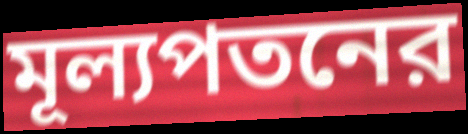
মূল্যপতনের